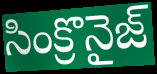
సింక్రొనైజ్